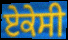
ਏਕੇਸੀ